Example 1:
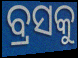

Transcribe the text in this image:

ବ୍ରସକୁ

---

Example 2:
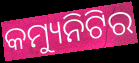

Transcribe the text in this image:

କମ୍ୟୁନିଟିର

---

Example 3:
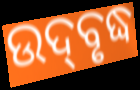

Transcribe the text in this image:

ଉଦ୍‌ବୃଦ୍ଧ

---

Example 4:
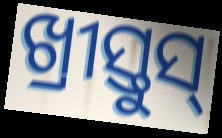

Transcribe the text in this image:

ଖ୍ରୀସ୍ତୁସ୍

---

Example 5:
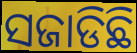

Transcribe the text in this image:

ସଜାଡିଛି